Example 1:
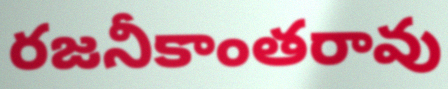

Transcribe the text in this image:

రజనీకాంతరావు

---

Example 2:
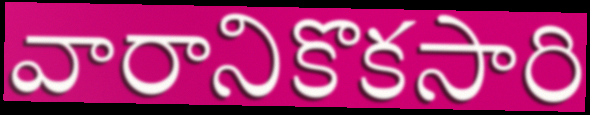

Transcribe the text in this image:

వారానికొకసారి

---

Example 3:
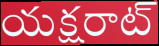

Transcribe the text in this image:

యక్షరాట్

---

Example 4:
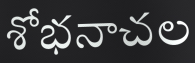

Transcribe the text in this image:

శోభనాచల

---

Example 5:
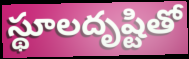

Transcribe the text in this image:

స్థూలదృష్టితో